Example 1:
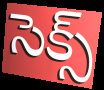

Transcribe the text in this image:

సెక్స్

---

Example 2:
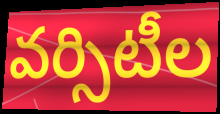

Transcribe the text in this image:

వర్సిటీల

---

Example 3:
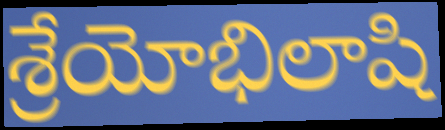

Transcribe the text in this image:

శ్రేయోభిలాషి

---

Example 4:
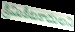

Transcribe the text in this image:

క్రిమికీటకాదులని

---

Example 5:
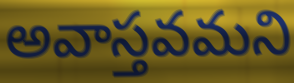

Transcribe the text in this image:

అవాస్తవమని